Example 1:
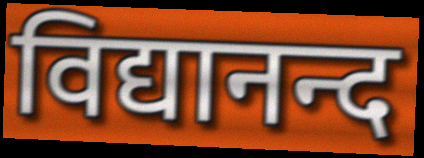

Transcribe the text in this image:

विद्यानन्द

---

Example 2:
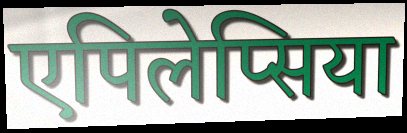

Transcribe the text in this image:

एपिलेप्सिया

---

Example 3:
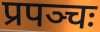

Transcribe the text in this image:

प्रपञ्चः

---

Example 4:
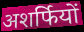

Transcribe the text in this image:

अशर्फियों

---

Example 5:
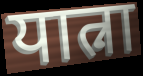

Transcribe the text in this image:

यात्ना